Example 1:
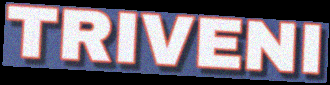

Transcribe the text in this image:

TRIVENI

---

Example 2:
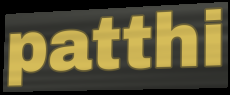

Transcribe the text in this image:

patthi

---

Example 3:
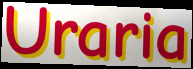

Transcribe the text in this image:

Uraria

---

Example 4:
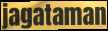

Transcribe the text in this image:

jagataman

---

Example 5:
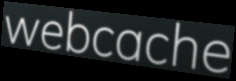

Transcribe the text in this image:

webcache